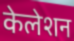
केलेशन